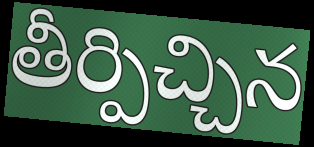
తీర్పిచ్చిన